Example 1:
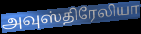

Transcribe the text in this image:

அவுஸ்திரேலியா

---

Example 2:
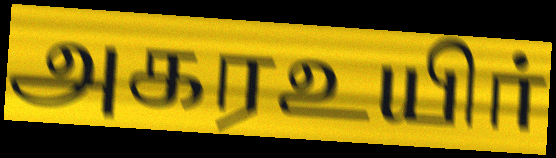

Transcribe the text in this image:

அகரஉயிர்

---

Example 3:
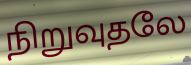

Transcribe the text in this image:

நிறுவுதலே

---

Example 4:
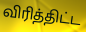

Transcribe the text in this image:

விரித்திட்ட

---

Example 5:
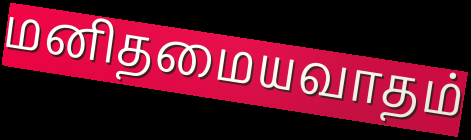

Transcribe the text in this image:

மனிதமையவாதம்